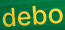
debo